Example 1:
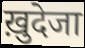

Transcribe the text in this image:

ख़ुदेजा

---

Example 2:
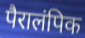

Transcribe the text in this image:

पैरालंपिक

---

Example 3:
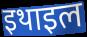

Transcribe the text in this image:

इथाइल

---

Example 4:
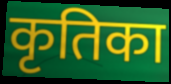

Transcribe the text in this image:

कृतिका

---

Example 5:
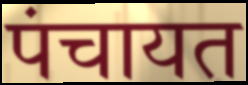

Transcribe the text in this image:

पंचायत